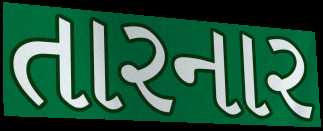
તારનાર